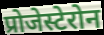
प्रोजेस्टेरोन